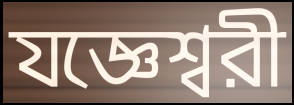
যজ্ঞেশ্বরী